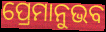
ପ୍ରେମାନୁଭବ